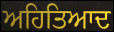
ਅਹਿਤਿਆਦ